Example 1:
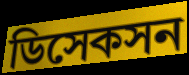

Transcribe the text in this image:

ডিসেকসন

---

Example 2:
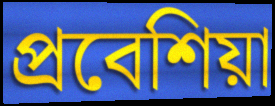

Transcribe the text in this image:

প্রবেশিয়া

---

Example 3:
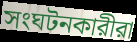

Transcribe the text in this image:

সংঘটনকারীরা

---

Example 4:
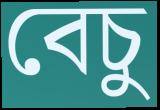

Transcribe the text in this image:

বেচু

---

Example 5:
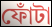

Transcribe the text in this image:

ফোঁটা